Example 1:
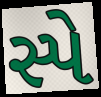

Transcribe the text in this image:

સ્પે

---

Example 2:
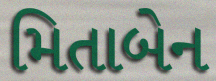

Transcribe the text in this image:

મિતાબેન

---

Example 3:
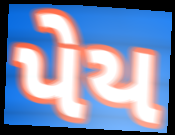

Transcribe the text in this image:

પેય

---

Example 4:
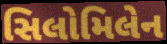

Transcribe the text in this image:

સિલોમિલેન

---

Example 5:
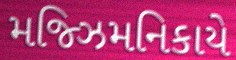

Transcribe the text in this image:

મજ્ઝિમનિકાયે